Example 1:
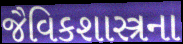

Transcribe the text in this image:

જૈવિકશાસ્ત્રના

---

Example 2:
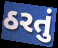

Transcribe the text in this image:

ઠરતું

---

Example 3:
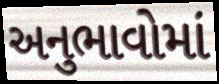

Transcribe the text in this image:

અનુભાવોમાં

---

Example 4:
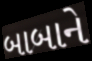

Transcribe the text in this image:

બાબાને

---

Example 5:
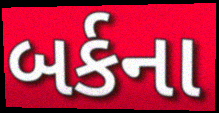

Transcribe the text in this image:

બર્કના